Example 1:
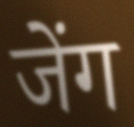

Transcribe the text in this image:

जेंग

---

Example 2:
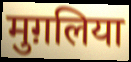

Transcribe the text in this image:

मुग़लिया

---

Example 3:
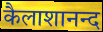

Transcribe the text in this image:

कैलाशानन्द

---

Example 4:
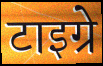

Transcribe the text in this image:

टाइग्रे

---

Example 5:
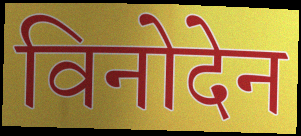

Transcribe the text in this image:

विनोदेन